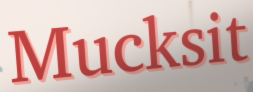
Mucksit